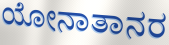
ಯೋನಾತಾನರ